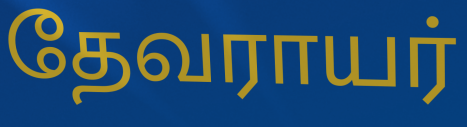
தேவராயர்